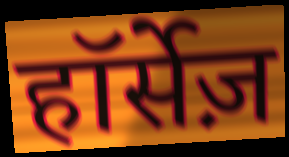
हॉर्सेज़